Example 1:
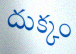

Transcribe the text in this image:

దుక్కం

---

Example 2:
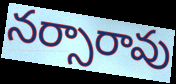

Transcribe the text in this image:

నర్సారావు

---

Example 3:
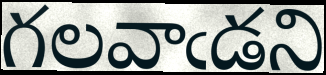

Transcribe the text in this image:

గలవాఁడని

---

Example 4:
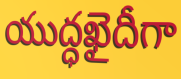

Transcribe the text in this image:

యుద్ధఖైదీగా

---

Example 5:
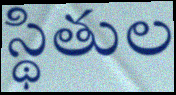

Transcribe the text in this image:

స్థితుల